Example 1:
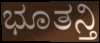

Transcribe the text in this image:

ಭೂತನ್ತಿ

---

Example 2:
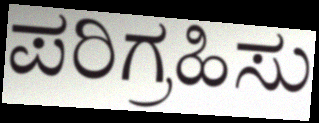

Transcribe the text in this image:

ಪರಿಗ್ರಹಿಸು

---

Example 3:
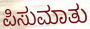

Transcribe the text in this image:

ಪಿಸುಮಾತು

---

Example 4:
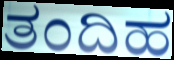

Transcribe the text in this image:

ತಂದಿಹ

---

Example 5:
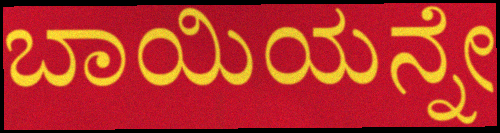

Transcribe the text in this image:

ಬಾಯಿಯನ್ನೇ